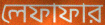
লেফাফার